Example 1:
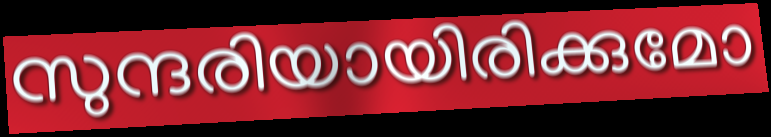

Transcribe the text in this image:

സുന്ദരിയായിരിക്കുമോ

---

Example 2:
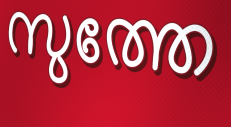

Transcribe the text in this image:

സുത്തേ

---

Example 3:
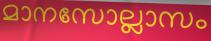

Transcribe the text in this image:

മാനസോല്ലാസം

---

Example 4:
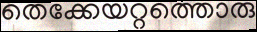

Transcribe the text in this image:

തെക്കേയറ്റത്തൊരു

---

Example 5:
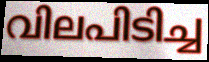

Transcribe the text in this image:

വിലപിടിച്ച